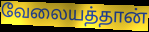
வேலையத்தான்